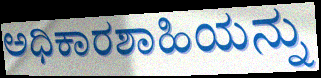
ಅಧಿಕಾರಶಾಹಿಯನ್ನು